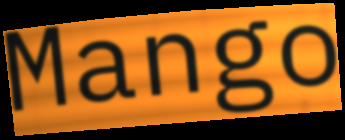
Mango